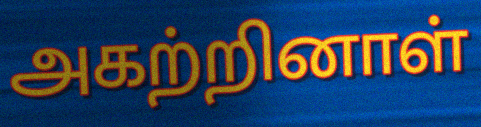
அகற்றினாள்